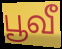
பூவீ